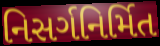
નિસર્ગનિર્મિત